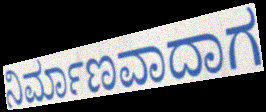
ನಿರ್ಮಾಣವಾದಾಗ